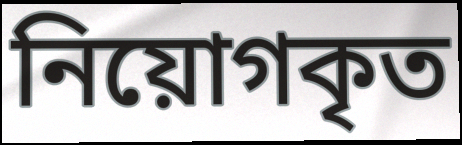
নিয়োগকৃত